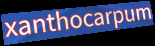
xanthocarpum